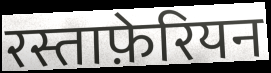
रस्ताफ़ेरियन